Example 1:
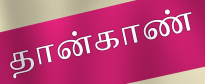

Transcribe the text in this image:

தான்காண்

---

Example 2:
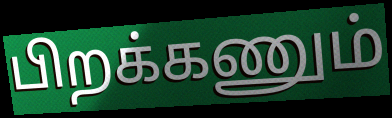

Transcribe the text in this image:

பிறக்கணும்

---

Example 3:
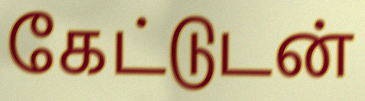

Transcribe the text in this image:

கேட்டுடன்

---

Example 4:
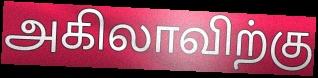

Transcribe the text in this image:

அகிலாவிற்கு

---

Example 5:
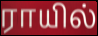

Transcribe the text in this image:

ராயில்